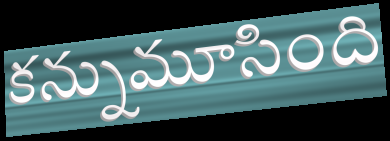
కన్నుమూసింది